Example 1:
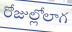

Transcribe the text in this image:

రోజుల్లోలాగ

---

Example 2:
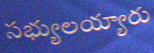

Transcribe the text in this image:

సభ్యులయ్యారు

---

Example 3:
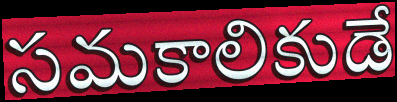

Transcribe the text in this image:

సమకాలికుడే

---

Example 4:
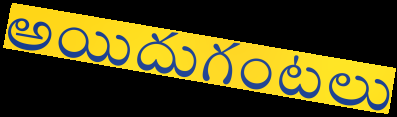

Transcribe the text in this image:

అయిదుగంటలు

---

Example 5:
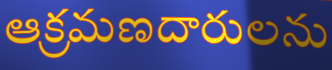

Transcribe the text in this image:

ఆక్రమణదారులను